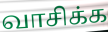
வாசிக்க